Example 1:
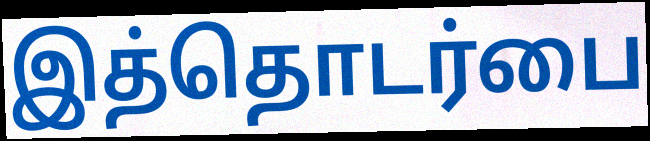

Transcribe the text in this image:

இத்தொடர்பை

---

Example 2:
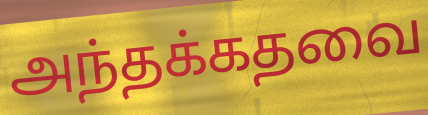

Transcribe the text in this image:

அந்தக்கதவை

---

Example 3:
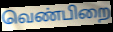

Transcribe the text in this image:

வெண்பிறை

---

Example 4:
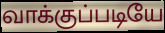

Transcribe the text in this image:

வாக்குப்படியே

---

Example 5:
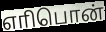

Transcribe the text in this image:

எரிபொன்